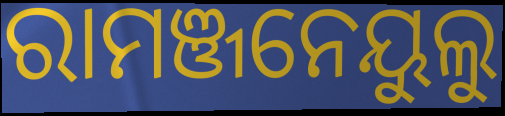
ରାମଞ୍ଜନେୟୁଲୁ